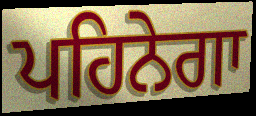
ਪਹਿਨੇਗਾ